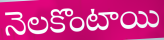
నెలకొంటాయి